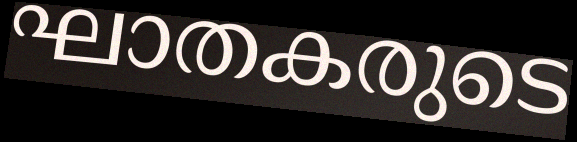
ഘാതകരുടെ